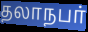
தலாநபர்